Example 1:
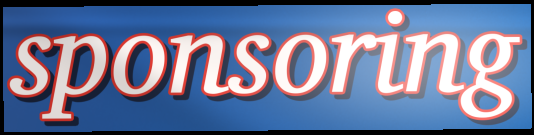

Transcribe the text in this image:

sponsoring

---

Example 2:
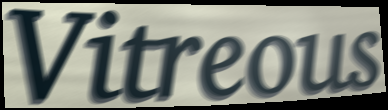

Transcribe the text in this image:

Vitreous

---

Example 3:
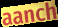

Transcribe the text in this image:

aanch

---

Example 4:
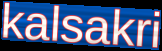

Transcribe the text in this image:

kalsakri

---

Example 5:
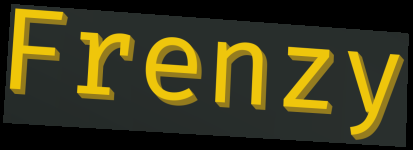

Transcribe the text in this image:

Frenzy